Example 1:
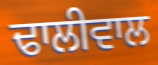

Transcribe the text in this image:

ਢਾਲੀਵਾਲ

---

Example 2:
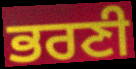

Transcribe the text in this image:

ਭਰਣੀ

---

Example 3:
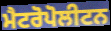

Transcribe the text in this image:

ਮੈਟਰੋਪੋਲੀਟਨ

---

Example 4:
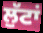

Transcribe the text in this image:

ਲੁੱਟਾਂ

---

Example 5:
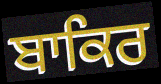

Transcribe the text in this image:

ਬਾਕਿਰ